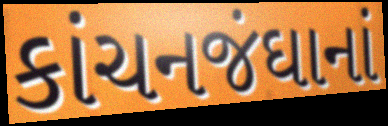
કાંચનજંઘાનાં